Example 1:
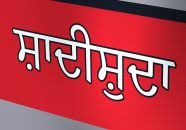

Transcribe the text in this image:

ਸ਼ਾਦੀਸ਼ੁਦਾ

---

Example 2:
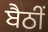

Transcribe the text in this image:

ਬੈਠੀਂ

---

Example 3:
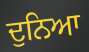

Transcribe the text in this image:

ਦੁਨਿਆ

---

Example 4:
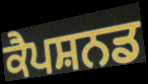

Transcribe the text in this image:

ਕੈਪਸ਼ਨਡ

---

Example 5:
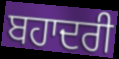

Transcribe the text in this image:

ਬਹਾਦਰੀ